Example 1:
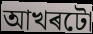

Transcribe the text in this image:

আখৰটো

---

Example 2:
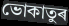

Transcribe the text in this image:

ভোকাতুৰ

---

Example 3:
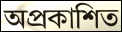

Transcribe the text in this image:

অপ্ৰকাশিত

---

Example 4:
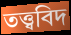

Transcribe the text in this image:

তত্ত্ববিদ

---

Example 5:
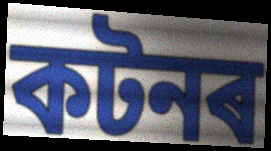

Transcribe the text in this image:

কটনৰ